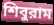
শিবুরাম